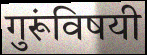
गुरूंविषयी